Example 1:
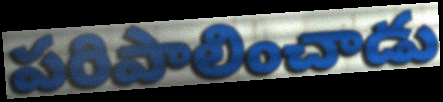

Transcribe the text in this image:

పరిపాలించాడు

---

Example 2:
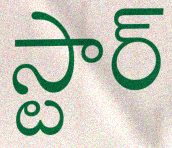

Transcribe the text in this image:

స్టార్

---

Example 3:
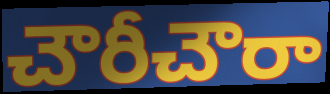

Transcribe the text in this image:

చౌరీచౌరా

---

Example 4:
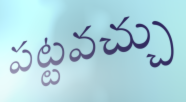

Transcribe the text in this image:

పట్టవచ్చు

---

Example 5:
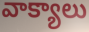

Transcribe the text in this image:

వాక్యాలు